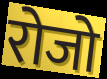
रोजो